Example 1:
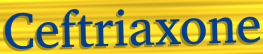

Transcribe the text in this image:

Ceftriaxone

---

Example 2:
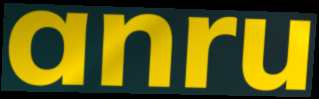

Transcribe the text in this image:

anru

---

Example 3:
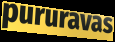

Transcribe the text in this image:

pururavas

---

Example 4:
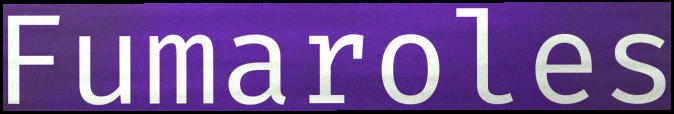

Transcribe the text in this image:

Fumaroles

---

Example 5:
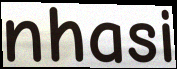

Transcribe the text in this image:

nhasi